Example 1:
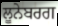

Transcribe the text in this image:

ਲੂਨੇਬਰਗ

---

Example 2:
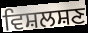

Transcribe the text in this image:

ਵਿਸ਼ਲਸ਼ਣ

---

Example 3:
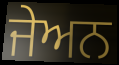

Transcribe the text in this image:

ਜੇਅਨ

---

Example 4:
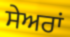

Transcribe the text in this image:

ਸੇਅਰਾਂ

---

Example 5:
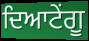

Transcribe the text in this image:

ਦਿਆਟੇਂਗੂ